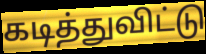
கடித்துவிட்டு